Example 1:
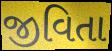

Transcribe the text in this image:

જીવિતા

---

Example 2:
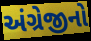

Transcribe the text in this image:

અંગ્રેજીનો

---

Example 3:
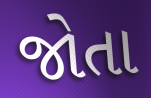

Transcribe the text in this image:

જોતા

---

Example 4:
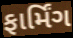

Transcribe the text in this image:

ફાર્મિંગ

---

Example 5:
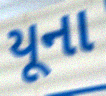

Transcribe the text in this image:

યૂના